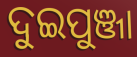
ଦୁଇପୁଞ୍ଜା